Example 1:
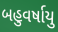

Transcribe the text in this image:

બહુવર્ષાયુ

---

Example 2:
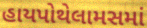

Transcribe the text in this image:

હાયપોથેલામસમાં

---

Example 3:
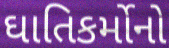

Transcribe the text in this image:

ઘાતિકર્મોનો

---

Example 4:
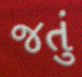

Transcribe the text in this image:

જતું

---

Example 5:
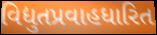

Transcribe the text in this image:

વિદ્યુતપ્રવાહધારિત